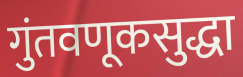
गुंतवणूकसुद्धा